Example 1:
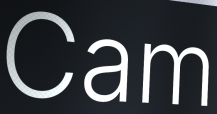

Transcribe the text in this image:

Cam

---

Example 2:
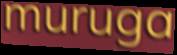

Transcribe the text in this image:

muruga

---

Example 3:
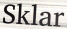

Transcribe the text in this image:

Sklar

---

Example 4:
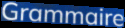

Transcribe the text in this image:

Grammaire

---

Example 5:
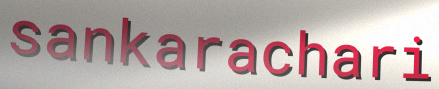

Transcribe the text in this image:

sankarachari